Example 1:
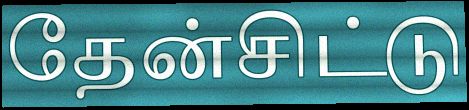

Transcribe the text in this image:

தேன்சிட்டு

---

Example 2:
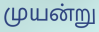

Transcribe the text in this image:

முயன்று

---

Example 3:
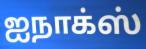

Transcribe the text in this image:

ஐநாக்ஸ்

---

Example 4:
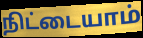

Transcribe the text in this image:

நிட்டையாம்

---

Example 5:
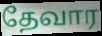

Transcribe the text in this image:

தேவார